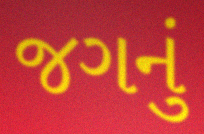
જગનું